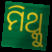
ମିଥ୍କୁ